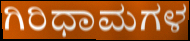
ಗಿರಿಧಾಮಗಳ